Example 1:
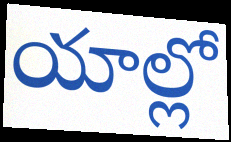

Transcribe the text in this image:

యాల్లో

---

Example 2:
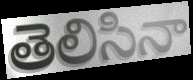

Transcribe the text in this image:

తెలిసినా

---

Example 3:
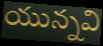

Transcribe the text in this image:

యున్నవి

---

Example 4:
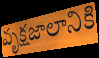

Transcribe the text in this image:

వృక్షజాలానికి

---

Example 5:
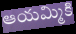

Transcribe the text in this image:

ఆయమ్మికి